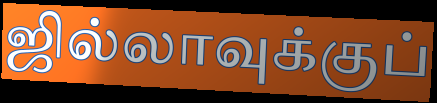
ஜில்லாவுக்குப்